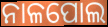
ନାଳପୋଲ